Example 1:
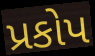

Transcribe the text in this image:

પ્રકોપ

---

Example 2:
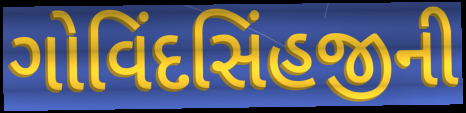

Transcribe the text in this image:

ગોવિંદસિંહજીની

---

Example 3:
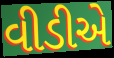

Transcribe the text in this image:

વીડીએ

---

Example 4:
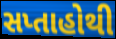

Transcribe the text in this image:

સપ્તાહોથી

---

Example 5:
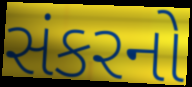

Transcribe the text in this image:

સંકરનો